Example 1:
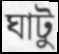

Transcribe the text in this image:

ঘাটু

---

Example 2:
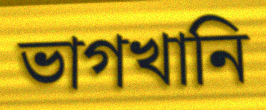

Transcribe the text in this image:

ভাগখানি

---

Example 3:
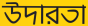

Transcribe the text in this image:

উদারতা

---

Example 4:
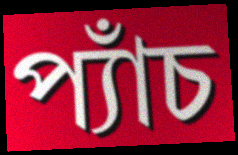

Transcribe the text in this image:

প্যাঁচ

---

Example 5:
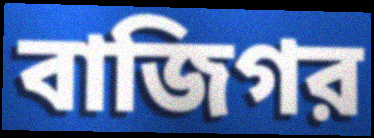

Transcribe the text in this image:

বাজিগর